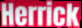
Herrick